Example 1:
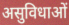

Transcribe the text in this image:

असुविधाओं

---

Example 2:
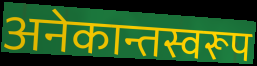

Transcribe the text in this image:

अनेकान्तस्वरूप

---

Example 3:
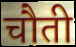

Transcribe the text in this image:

चौती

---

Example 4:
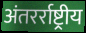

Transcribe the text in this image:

अंतरर्राष्ट्रीय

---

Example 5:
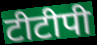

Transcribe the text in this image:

टीटीपी